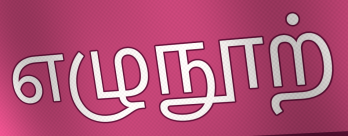
எழுநூற்